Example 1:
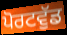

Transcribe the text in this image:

ਪੋਰਟਵੁੱਡ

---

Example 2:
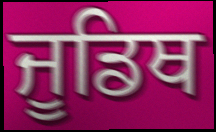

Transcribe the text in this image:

ਜੂਡਿਥ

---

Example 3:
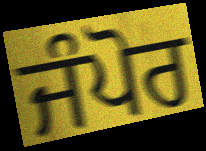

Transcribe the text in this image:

ਜੰਪੋਰ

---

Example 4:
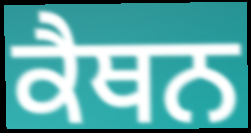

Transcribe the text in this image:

ਕੈਥਨ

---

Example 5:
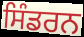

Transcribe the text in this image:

ਸਿੰਡਰਨ